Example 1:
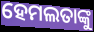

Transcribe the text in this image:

ହେମଲତାଙ୍କୁ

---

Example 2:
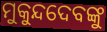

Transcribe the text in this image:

ମୁକୁନ୍ଦଦେବଙ୍କୁ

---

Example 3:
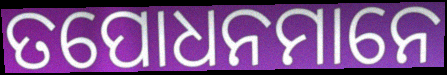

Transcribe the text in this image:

ତପୋଧନମାନେ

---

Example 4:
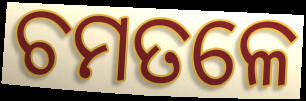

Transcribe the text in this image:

ଚମତଳେ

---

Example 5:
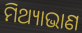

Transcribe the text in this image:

ମିଥ୍ୟାଭାଣ